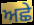
ਅਛੇ